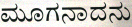
ಮೂಗನಾದನು